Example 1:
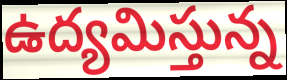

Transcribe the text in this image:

ఉద్యమిస్తున్న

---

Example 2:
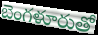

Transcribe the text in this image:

బెంగళూరుతో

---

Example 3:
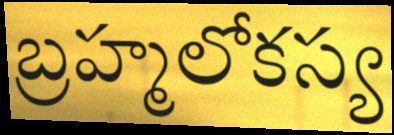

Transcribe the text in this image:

బ్రహ్మలోకస్య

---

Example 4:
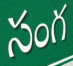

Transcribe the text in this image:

సంగ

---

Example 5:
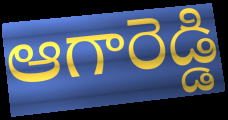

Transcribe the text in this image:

ఆగారెడ్డి